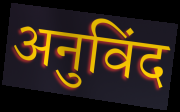
अनुविंद